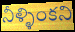
నీళ్ళింకని